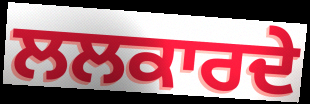
ਲਲਕਾਰਦੇ